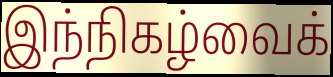
இந்நிகழ்வைக்